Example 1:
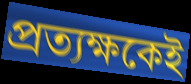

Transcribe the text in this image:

প্রত্যক্ষকেই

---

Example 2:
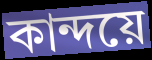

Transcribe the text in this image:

কান্দয়ে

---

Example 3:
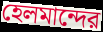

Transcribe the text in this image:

হেলমান্দের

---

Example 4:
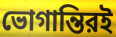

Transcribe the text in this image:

ভোগান্তিরই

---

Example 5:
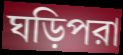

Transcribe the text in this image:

ঘড়িপরা